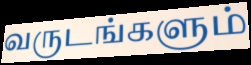
வருடங்களும்